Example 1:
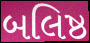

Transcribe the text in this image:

બલિષ્ઠ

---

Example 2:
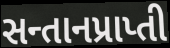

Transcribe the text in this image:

સન્તાનપ્રાપ્તી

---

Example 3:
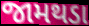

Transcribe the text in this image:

જામથડા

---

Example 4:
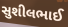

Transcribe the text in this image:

સુશીલભાઈ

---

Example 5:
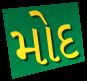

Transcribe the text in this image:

મોદ